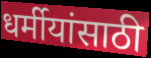
धर्मीयांसाठी